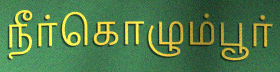
நீர்கொழும்பூர்